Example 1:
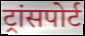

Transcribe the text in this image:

ट्रांसपोर्ट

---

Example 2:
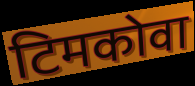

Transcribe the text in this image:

टिमकोवा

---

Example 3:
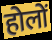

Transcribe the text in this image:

होलों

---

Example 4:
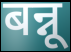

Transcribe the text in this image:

बन्नू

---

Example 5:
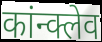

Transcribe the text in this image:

कांन्क्लेव